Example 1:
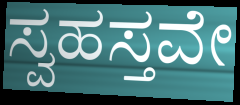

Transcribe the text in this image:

ಸ್ವಹಸ್ತವೇ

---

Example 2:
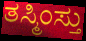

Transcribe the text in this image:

ತಸ್ಮಿಂಸ್ತು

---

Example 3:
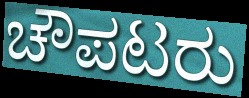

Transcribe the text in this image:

ಚೌಪಟರು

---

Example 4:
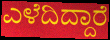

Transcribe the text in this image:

ಎಳೆದಿದ್ದಾರೆ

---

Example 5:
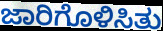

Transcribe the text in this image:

ಜಾರಿಗೊಳಿಸಿತು